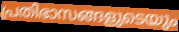
പ്രതിഭാസങ്ങളുടെയും